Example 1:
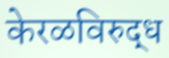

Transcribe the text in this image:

केरळविरुद्ध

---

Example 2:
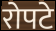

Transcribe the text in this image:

रोपटे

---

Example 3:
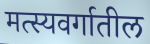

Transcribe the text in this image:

मत्स्यवर्गातील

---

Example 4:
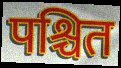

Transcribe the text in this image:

पश्चित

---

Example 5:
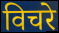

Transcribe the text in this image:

विचरे